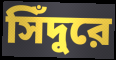
সিঁদুরে